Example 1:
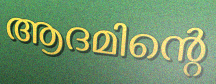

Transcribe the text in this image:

ആദമിന്റെ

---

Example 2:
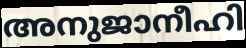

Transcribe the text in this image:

അനുജാനീഹി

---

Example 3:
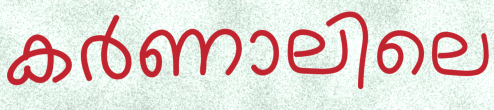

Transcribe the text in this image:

കർണാലിലെ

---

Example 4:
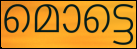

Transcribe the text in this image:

മൊട്ടെ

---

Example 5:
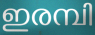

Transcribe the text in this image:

ഇരമ്പി